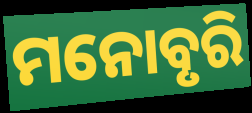
ମନୋବୃରି